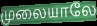
முலையாலே